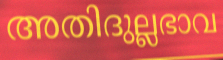
അതിദുല്ലഭാവ